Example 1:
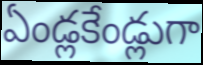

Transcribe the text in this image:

ఏండ్లకేండ్లుగా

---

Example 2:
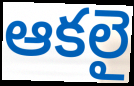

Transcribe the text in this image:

ఆకలై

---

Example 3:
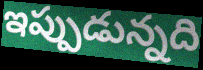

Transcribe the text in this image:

ఇప్పుడున్నది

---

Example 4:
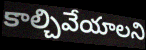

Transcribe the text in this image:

కాల్చివేయాలని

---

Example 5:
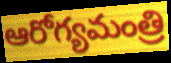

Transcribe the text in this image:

ఆరోగ్యమంత్రి